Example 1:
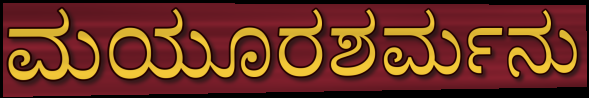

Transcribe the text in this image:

ಮಯೂರಶರ್ಮನು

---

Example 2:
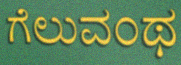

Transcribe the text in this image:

ಗೆಲುವಂಥ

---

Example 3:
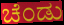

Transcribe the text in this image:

ಚೆಂಡು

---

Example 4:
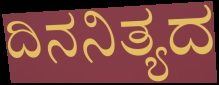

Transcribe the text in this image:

ದಿನನಿತ್ಯದ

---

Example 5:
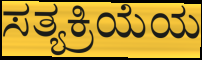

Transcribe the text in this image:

ಸತ್ಯಕ್ರಿಯೆಯ